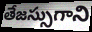
తేజస్సుగాని